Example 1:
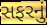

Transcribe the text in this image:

સફરનું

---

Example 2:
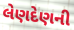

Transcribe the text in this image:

લેણદેણની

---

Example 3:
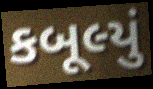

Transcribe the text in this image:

કબૂલ્યું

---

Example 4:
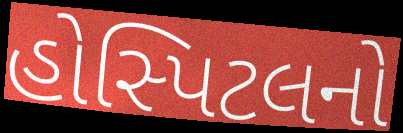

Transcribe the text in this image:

હોસ્પિટલનો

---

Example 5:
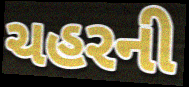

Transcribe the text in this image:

ચહરની